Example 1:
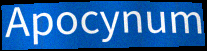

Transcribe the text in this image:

Apocynum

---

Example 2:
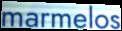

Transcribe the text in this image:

marmelos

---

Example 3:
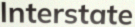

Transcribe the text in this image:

Interstate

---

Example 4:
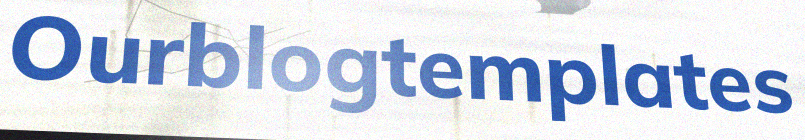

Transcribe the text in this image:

Ourblogtemplates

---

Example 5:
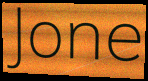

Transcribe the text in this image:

Jone